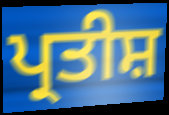
ਪ੍ਰਤੀਸ਼